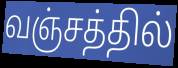
வஞ்சத்தில்